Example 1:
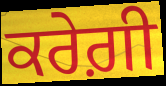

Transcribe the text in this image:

ਕਰੇਗ਼ੀ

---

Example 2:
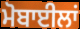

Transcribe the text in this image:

ਮੋਬਾਈਲਾਂ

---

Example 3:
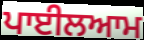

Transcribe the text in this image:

ਪਾਈਲਆਮ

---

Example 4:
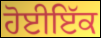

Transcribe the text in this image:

ਹੋਈਇੱਕ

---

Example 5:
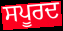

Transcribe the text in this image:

ਸਪੂਰਦ